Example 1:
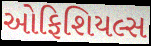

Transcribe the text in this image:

ઓફિશિયલ્સ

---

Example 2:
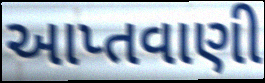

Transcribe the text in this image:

આપ્તવાણી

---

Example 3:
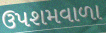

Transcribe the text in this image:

ઉપશમવાળા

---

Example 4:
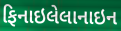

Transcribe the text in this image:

ફિનાઇલેલાનાઇન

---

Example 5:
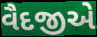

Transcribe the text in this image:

વૈદજીએ